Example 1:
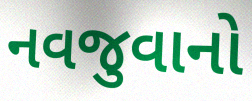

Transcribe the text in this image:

નવજુવાનો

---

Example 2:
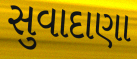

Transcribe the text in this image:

સુવાદાણા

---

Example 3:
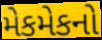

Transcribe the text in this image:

મેકમેકનો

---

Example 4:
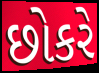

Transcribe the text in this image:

છોકરે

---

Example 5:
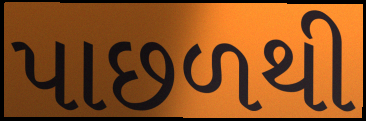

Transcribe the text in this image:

પાછળથી